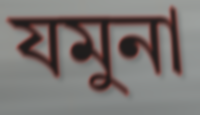
যমুনা